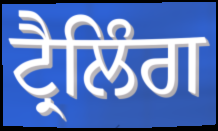
ਟ੍ਰੈਲਿੰਗ